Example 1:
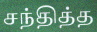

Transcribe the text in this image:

சந்தித்த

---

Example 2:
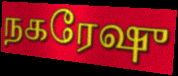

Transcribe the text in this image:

நகரேஷு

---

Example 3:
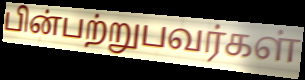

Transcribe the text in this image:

பின்பற்றுபவர்கள்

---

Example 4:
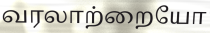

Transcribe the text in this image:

வரலாற்றையோ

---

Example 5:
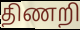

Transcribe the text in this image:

திணறி